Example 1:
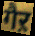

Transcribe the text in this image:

गैऱ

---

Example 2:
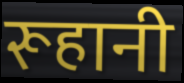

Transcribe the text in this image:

रूहानी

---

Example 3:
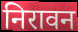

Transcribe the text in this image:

निरावन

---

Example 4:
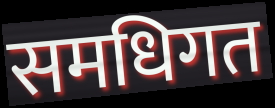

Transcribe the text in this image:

समधिगत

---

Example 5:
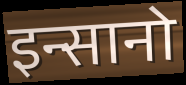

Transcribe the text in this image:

इन्सानो